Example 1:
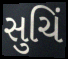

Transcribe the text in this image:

સુચિં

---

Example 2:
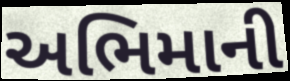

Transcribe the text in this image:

અભિમાની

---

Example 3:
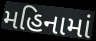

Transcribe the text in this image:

મહિનામાં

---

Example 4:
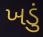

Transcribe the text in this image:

ખડું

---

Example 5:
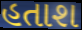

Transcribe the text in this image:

હતાશ